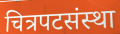
चित्रपटसंस्था